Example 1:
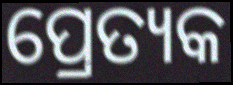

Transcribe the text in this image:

ପ୍ରେତ୍ୟକ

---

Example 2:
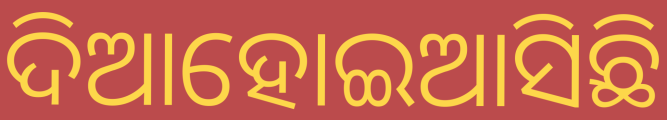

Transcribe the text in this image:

ଦିଆହୋଇଆସିଛି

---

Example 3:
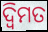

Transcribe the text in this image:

ଦ୍ୱିମତ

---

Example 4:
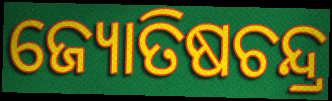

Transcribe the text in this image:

ଜ୍ୟୋତିଷଚନ୍ଦ୍ର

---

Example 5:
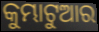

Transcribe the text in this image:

କୁମ୍ଭାଟୁଆର